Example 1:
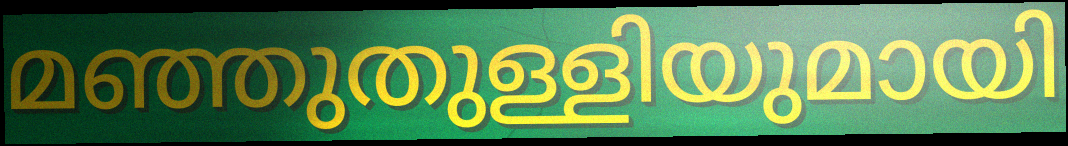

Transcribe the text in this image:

മഞ്ഞുതുള്ളിയുമായി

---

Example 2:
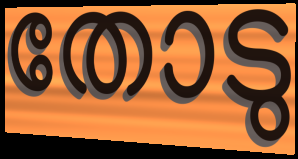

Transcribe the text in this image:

തോടു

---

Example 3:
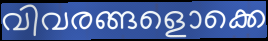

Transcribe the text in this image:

വിവരങ്ങളൊക്കെ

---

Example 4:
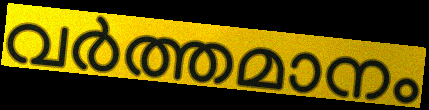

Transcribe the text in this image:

വർത്തമാനം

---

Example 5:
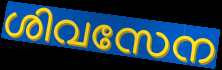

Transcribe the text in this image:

ശിവസേന